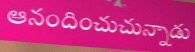
ఆనందించుచున్నాడు